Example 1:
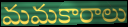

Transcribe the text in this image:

మమకారాలు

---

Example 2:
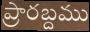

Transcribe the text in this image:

ప్రారబ్దము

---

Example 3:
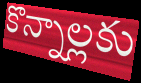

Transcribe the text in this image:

కొన్నాల్లకు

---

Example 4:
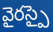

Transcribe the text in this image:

వైరస్పై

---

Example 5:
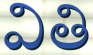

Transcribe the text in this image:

వితి